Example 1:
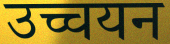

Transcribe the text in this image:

उच्चयन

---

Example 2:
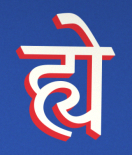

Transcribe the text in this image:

ह्ये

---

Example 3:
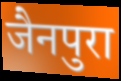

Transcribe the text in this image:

जैनपुरा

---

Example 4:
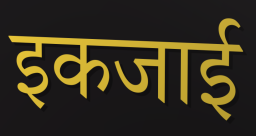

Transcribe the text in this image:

इकजाई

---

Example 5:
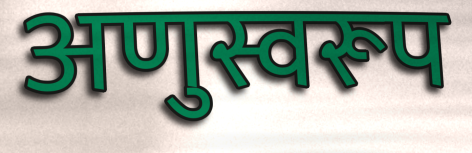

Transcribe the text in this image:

अणुस्वरूप